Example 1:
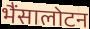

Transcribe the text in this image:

भैंसालोटन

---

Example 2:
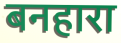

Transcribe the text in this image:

बनहारा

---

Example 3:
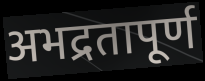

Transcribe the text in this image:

अभद्रतापूर्ण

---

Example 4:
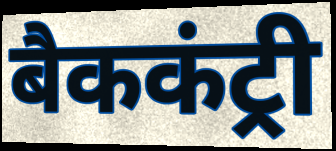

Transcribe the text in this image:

बैककंट्री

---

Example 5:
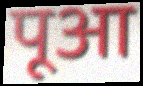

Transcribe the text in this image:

पूआ